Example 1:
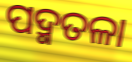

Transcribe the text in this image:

ପଦ୍ମତଳା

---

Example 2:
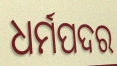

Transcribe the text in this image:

ଧର୍ମପଦର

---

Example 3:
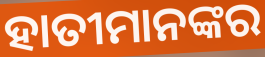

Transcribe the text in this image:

ହାତୀମାନଙ୍କର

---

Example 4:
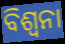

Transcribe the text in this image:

ବିଶ୍ୱନା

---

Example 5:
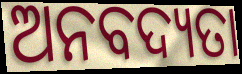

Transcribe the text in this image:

ଅନବଦ୍ୟତା